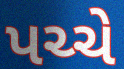
પચ્ચે